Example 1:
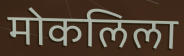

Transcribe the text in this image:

मोकलिला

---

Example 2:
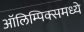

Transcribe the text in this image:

ऑलिम्पिक्समध्ये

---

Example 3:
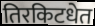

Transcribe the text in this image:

तिरकिटधेत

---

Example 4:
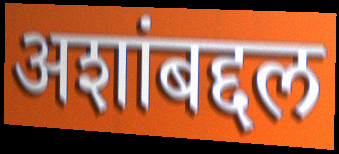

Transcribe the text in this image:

अशांबद्दल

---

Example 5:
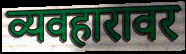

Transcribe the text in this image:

व्यवहारावर